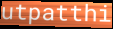
utpatthi